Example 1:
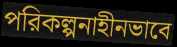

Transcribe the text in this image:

পরিকল্পনাহীনভাবে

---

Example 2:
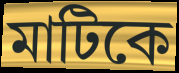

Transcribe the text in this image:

মাটিকে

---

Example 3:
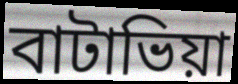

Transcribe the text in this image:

বাটাভিয়া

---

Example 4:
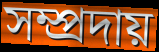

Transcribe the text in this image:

সম্প্রদায়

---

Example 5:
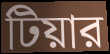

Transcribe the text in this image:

টিয়ার